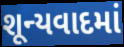
શૂન્યવાદમાં